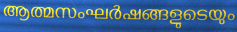
ആത്മസംഘർഷങ്ങളുടെയും